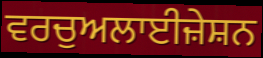
ਵਰਚੁਅਲਾਈਜ਼ੇਸ਼ਨ